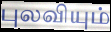
புலவியும்